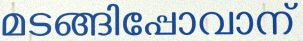
മടങ്ങിപ്പോവാന്